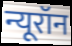
न्यूरॉन